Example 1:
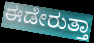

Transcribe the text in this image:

ಈಡೇರುತ್ತಾ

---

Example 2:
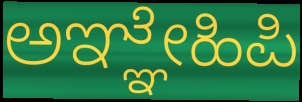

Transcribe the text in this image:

ಅಞ್ಞೇಹಿಪಿ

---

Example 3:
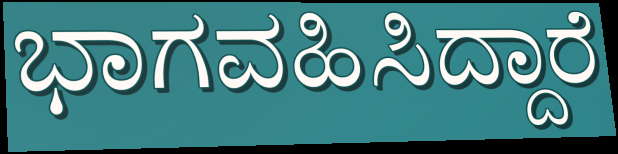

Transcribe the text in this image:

ಭಾಗವಹಿಸಿದ್ದಾರೆ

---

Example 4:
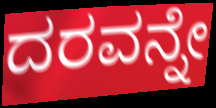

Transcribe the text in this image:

ದರವನ್ನೇ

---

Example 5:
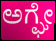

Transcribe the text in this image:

ಅಗ್ಘೇ